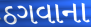
ઠગવાના